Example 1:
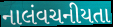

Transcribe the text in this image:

નાલંવચનીયતા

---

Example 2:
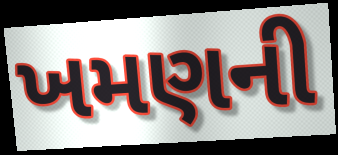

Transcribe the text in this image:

ખમણની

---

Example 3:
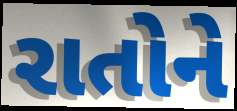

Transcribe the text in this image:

રાતોને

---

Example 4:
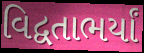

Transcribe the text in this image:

વિદ્વતાભર્યાં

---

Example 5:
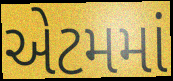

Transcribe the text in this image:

એટમમાં